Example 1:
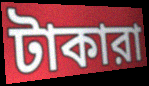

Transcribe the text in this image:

টাকারা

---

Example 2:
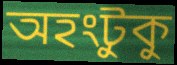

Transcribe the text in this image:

অহংটুকু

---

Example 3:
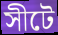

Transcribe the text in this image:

সীটে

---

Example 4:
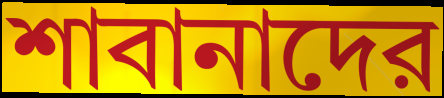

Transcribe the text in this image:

শাবানাদের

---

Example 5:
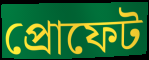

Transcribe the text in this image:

প্রোফেট